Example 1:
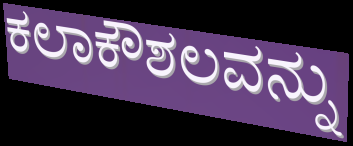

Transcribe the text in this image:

ಕಲಾಕೌಶಲವನ್ನು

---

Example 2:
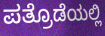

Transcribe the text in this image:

ಪತ್ರೊಡೆಯಲ್ಲಿ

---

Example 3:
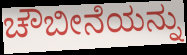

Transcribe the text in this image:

ಚೌಬೀನೆಯನ್ನು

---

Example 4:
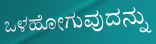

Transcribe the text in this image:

ಒಳಹೋಗುವುದನ್ನು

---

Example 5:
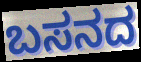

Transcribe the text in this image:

ಬಸನದ